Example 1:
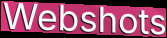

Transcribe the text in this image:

Webshots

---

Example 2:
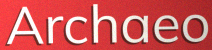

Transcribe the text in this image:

Archaeo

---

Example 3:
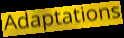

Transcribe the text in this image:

Adaptations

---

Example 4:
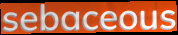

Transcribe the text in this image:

sebaceous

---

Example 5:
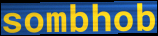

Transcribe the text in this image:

sombhob